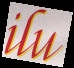
ilu